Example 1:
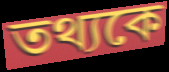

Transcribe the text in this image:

তথ্যকে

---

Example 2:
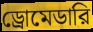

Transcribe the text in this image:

ড্রোমেডারি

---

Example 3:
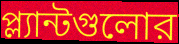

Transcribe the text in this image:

প্ল্যান্টগুলোর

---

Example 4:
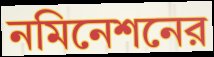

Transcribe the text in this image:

নমিনেশনের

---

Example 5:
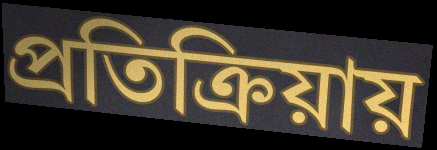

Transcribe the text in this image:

প্রতিক্রিয়ায়